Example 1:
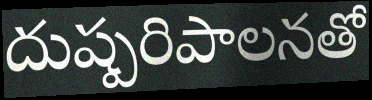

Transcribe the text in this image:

దుష్పరిపాలనతో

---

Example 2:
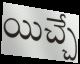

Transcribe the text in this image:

యిచ్చే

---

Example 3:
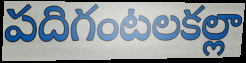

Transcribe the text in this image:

పదిగంటలకల్లా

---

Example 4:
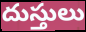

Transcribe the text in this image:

దుస్తులు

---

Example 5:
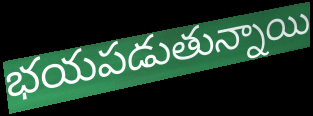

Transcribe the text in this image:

భయపడుతున్నాయి